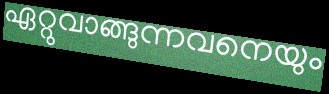
ഏറ്റുവാങ്ങുന്നവനെയും